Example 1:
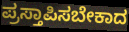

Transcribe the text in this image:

ಪ್ರಸ್ತಾಪಿಸಬೇಕಾದ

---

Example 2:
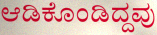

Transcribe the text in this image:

ಆಡಿಕೊಂಡಿದ್ದವು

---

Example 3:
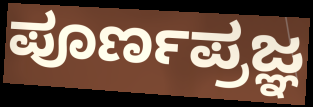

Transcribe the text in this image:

ಪೂರ್ಣಪ್ರಜ್ಞ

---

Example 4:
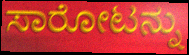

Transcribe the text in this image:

ಸಾರೋಟನ್ನು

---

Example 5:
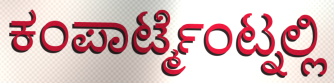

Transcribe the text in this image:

ಕಂಪಾರ್ಟ್ಮೆಂಟ್ನಲ್ಲಿ